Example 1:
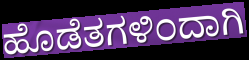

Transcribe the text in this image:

ಹೊಡೆತಗಳಿಂದಾಗಿ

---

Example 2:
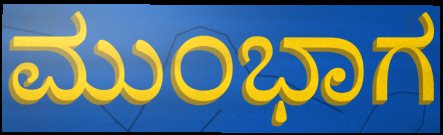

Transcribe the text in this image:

ಮುಂಭಾಗ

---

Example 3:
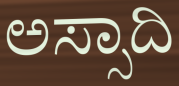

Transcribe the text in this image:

ಅಸ್ಸಾದಿ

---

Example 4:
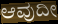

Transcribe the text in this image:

ಆವುದೀ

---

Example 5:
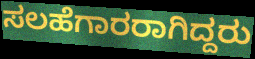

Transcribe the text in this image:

ಸಲಹೆಗಾರರಾಗಿದ್ದರು